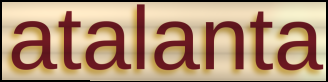
atalanta